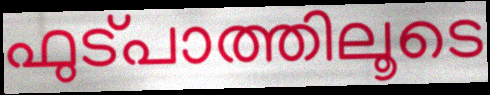
ഫുട്പാത്തിലൂടെ